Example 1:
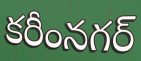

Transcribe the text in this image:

కరీంనగర్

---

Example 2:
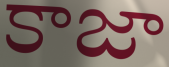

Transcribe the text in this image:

కాజా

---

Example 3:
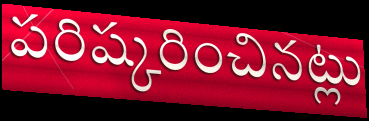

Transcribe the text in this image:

పరిష్కరించినట్లు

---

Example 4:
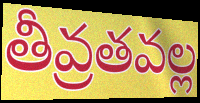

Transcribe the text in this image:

తీవ్రతవల్ల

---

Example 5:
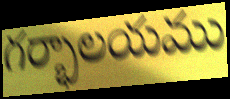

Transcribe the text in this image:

గర్భాలయము